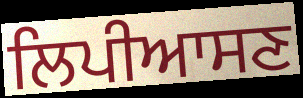
ਲਿਪੀਆਸਣ